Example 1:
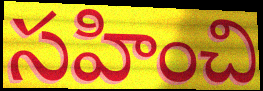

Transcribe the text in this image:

సహించి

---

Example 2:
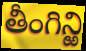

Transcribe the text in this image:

తీంగిన్ఱి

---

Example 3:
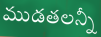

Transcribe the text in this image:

ముడతలన్నీ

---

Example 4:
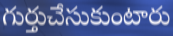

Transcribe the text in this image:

గుర్తుచేసుకుంటారు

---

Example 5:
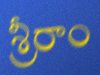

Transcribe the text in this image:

శ్రీరాం